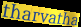
tharvatha